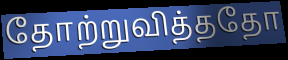
தோற்றுவித்ததோ